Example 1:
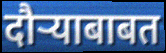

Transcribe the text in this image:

दौऱ्याबाबत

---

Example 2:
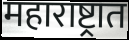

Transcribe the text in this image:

महाराष्ट्रात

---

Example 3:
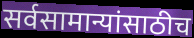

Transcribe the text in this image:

सर्वसामान्यांसाठीच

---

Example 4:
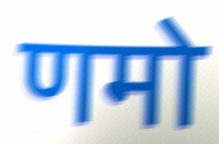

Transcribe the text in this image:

णमो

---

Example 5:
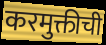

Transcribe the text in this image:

करमुक्तीची